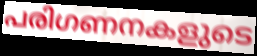
പരിഗണനകളുടെ